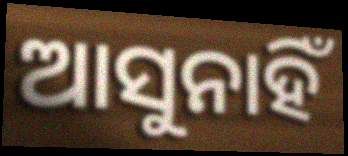
ଆସୁନାହିଁ